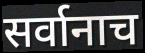
सर्वानाच